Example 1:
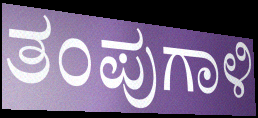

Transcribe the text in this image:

ತಂಪುಗಾಳಿ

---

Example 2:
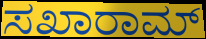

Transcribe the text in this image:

ಸಖಾರಾಮ್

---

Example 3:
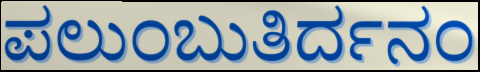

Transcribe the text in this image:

ಪಲುಂಬುತಿರ್ದನಂ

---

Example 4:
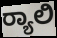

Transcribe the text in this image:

ರ‍್ಯಾಲಿ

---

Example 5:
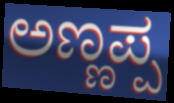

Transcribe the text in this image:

ಅಣ್ಣಪ್ಪ